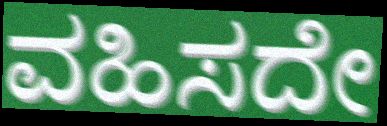
ವಹಿಸದೇ